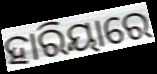
ହାରିୟାରେ